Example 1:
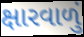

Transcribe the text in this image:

ક્ષારવાળું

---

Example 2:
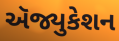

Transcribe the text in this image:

ઍજ્યુકેશન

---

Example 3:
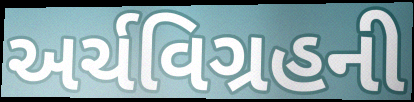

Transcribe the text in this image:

અર્ચવિગ્રહની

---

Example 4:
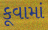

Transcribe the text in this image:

કૂવામાં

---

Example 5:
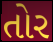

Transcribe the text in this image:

તોર